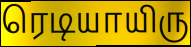
ரெடியாயிரு